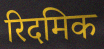
रिदमिक